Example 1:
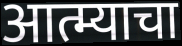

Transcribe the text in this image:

आत्म्याचा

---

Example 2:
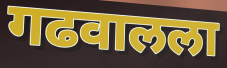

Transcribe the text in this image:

गढवालला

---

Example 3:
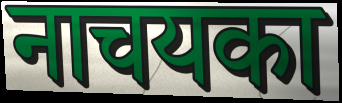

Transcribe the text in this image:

नाचयका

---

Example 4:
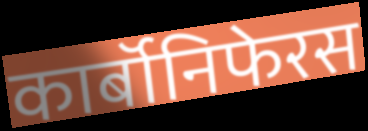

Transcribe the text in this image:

कार्बॉनिफेरस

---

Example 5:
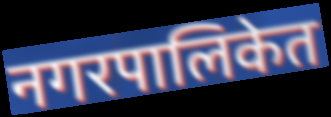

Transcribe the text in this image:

नगरपालिकेत